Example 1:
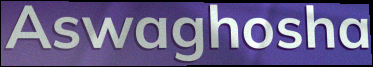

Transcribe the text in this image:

Aswaghosha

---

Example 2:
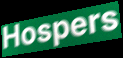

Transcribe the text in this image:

Hospers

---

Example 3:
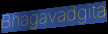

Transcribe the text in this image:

Bhagavadgita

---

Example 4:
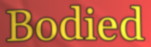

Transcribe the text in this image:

Bodied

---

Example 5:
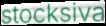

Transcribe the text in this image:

stocksiva